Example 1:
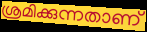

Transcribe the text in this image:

ശ്രമിക്കുന്നതാണ്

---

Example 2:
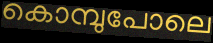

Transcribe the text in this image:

കൊമ്പുപോലെ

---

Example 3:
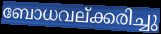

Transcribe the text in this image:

ബോധവല്ക്കരിച്ചു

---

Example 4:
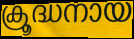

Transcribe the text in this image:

ക്രൂദ്ധനായ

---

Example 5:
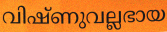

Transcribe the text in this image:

വിഷ്ണുവല്ലഭായ